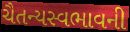
ચૈતન્યસ્વભાવની